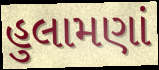
હુલામણાં